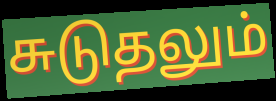
சுடுதலும்